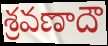
శ్రవణాదౌ